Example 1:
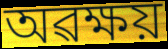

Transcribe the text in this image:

অৱক্ষয়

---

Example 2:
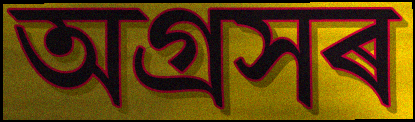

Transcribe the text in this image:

অগ্ৰসৰ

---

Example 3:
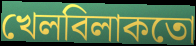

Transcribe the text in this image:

খেলবিলাকতো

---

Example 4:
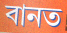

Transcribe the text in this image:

বানত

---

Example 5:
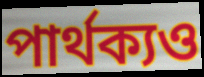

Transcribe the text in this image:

পাৰ্থক্যও